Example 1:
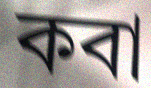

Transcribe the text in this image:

কবা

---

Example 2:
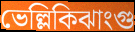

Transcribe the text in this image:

ভেল্লিকিঝাংগু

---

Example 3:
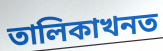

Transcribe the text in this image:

তালিকাখনত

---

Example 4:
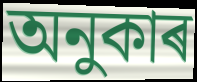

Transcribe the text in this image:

অনুকাৰ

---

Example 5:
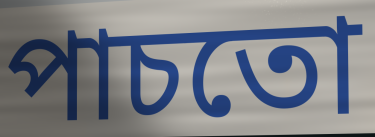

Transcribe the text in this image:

পাচতো